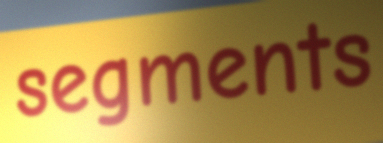
segments